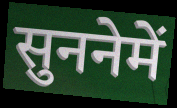
सुननेमें